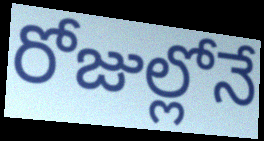
రోజుల్లోనే